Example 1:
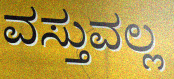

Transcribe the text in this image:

ವಸ್ತುವಲ್ಲ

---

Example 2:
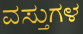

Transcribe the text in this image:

ವಸ್ತುಗಳ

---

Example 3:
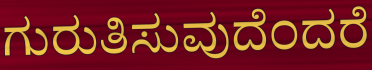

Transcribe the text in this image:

ಗುರುತಿಸುವುದೆಂದರೆ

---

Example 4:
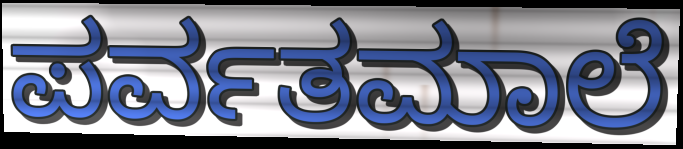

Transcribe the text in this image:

ಪರ್ವತಮಾಲೆ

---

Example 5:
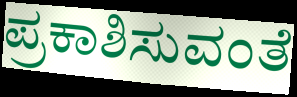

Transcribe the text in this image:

ಪ್ರಕಾಶಿಸುವಂತೆ